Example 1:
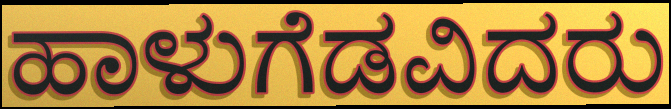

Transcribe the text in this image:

ಹಾಳುಗೆಡವಿದರು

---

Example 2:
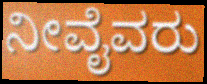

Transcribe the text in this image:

ನೀವೈವರು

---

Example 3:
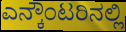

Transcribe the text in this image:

ಎನ್ಕೌಂಟರಿನಲ್ಲಿ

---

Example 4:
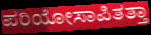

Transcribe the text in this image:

ಪರಿಯೋಸಾಪಿತತ್ತಾ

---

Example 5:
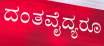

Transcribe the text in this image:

ದಂತವೈದ್ಯರೂ